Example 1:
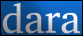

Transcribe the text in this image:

dara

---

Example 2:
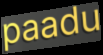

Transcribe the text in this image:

paadu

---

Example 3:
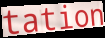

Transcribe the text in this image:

tation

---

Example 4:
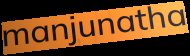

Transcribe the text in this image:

manjunatha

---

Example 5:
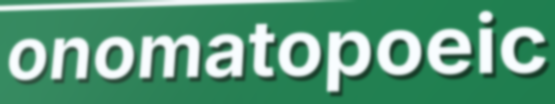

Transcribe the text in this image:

onomatopoeic